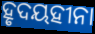
ହୃଦୟହୀନା